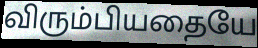
விரும்பியதையே